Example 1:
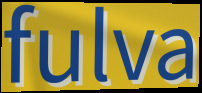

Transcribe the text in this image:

fulva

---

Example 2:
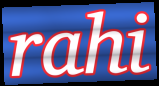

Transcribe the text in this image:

rahi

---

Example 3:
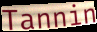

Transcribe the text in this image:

Tannin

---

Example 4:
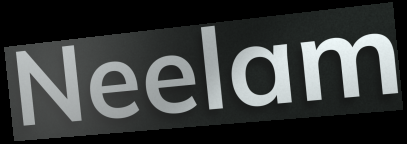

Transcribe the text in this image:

Neelam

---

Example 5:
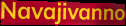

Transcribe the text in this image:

Navajivanno